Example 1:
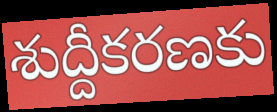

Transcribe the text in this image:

శుద్దీకరణకు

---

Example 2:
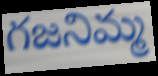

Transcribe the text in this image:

గజనిమ్మ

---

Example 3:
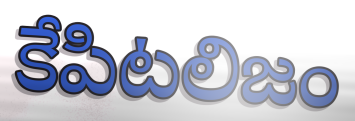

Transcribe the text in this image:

కేపిటలిజం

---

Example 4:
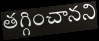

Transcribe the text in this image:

తగ్గించానని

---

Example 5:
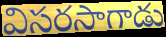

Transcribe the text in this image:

విసరసాగాడు